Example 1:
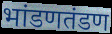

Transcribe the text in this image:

भांडणतंडण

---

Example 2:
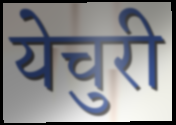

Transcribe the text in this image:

येचुरी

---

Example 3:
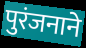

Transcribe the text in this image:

पुरंजनाने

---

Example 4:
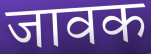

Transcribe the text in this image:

जावक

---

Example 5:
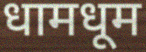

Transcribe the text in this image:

धामधूम